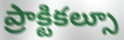
ప్రాక్టికల్సూ